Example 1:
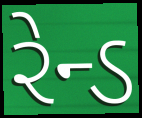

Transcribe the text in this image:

રેન્ડ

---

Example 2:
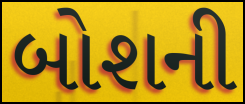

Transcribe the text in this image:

બોશની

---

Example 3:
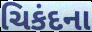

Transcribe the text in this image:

ચિકંદના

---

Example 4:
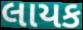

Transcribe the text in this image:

લાયક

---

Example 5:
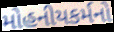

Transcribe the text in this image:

મોહનીયકર્મનો